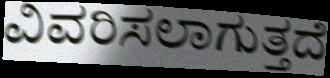
ವಿವರಿಸಲಾಗುತ್ತದೆ